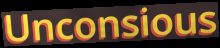
Unconsious